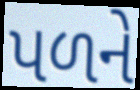
પળને